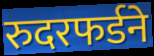
रुदरफर्डने